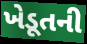
ખેડૂતની